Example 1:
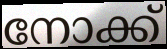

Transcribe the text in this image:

നോക്ക്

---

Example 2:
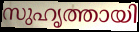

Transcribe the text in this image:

സുഹൃത്തായി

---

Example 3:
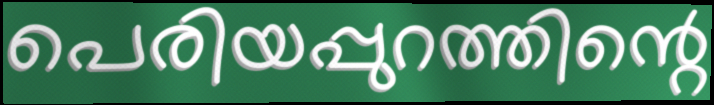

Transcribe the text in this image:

പെരിയപ്പുറത്തിന്റെ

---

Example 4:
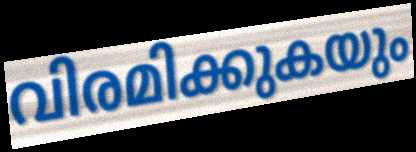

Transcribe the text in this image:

വിരമിക്കുകയും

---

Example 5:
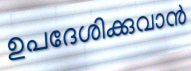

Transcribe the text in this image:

ഉപദേശിക്കുവാൻ